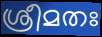
ശ്രീമതഃ